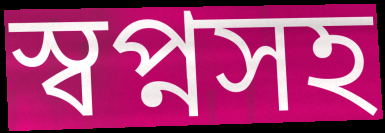
স্বপ্নসহ